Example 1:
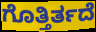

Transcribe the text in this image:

ಗೊತ್ತಿರ್ತದೆ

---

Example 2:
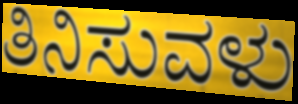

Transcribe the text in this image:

ತಿನಿಸುವಳು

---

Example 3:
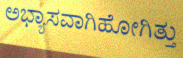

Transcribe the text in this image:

ಅಭ್ಯಾಸವಾಗಿಹೋಗಿತ್ತು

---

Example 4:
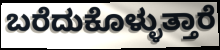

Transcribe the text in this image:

ಬರೆದುಕೊಳ್ಳುತ್ತಾರೆ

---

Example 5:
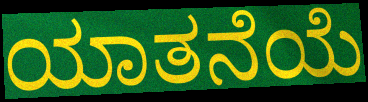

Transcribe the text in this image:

ಯಾತನೆಯೆ